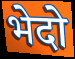
भेदो